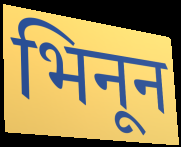
भिनून